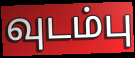
வுடம்பு